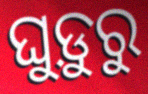
ଘୁଡ଼ୁରୁ